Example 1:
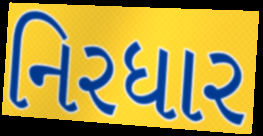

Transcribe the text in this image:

નિરધાર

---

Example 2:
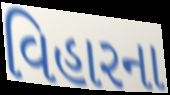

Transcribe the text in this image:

વિહારના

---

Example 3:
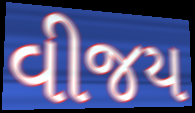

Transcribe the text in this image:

વીજય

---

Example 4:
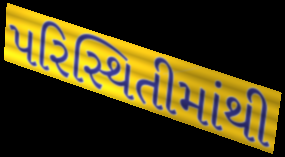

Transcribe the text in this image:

પરિસ્થિતીમાંથી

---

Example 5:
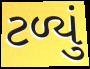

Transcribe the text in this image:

ટળ્યું